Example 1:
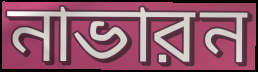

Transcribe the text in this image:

নাভারন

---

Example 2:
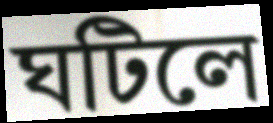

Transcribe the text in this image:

ঘটিলে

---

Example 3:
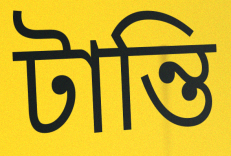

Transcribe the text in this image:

টান্তি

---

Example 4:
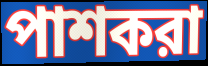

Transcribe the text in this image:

পাশকরা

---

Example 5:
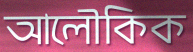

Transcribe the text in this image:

আলৌকিক